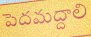
పెదమద్దాలి